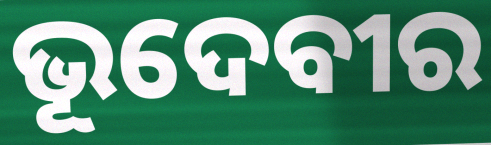
ଭୂଦେବୀର